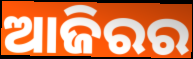
ଆଜିରର